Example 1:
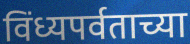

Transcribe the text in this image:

विंध्यपर्वताच्या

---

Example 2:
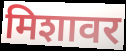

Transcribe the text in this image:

मिशावर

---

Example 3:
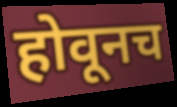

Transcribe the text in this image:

होवूनच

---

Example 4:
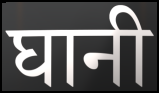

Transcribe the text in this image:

घानी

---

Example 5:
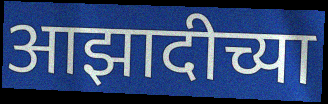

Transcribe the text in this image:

आझादीच्या